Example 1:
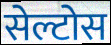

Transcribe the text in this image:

सेल्टोस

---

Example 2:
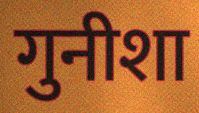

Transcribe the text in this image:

गुनीशा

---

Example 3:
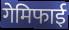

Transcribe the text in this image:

गेमिफाई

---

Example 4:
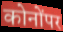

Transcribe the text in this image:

कोनोंपर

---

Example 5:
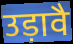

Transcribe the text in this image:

उड़ावै